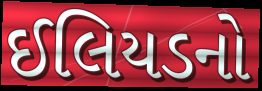
ઈલિયડનો